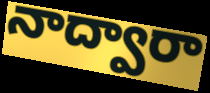
నాద్వారా